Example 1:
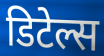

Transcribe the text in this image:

डिटेल्स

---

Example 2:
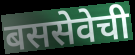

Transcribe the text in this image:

बससेवेची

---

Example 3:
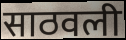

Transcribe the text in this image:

साठवली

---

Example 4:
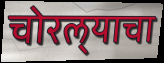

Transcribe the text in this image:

चोरल्याचा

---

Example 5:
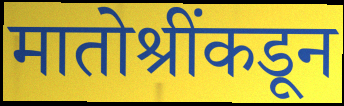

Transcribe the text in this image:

मातोश्रींकडून